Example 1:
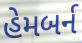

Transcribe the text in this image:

હેમબર્ન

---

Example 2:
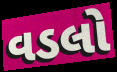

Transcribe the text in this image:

વડલો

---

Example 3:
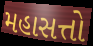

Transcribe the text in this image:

મહાસત્તો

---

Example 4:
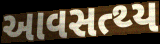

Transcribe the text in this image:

આવસત્થ્ય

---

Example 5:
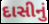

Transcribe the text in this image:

દાસીનું